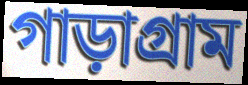
গাড়াগ্রাম